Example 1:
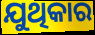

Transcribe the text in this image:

ଯୁଥିକାର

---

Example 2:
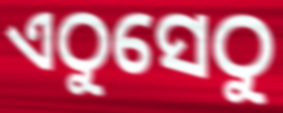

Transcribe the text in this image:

ଏଠୁସେଠୁ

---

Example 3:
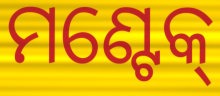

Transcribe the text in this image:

ମଣ୍ଟେକ୍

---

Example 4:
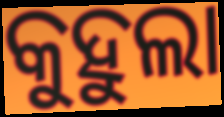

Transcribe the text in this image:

କୁହୁଲା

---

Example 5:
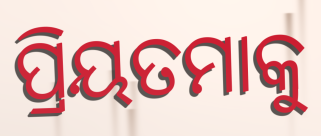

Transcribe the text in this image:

ପ୍ରିୟତମାକୁ